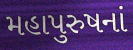
મહાપુરુષનાં